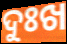
ଦୁଃଖ